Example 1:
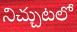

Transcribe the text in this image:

నిచ్చుటలో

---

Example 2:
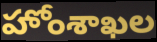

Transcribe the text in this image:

హోంశాఖల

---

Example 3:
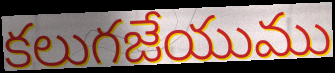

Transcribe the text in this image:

కలుగజేయుము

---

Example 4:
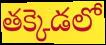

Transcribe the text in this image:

తక్కెడలో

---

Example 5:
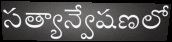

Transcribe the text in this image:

సత్యాన్వేషణలో